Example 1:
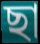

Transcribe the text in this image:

ছা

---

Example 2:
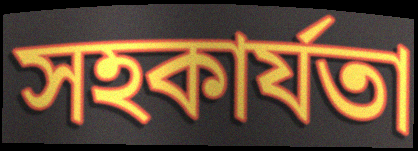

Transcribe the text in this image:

সহকাৰ্যতা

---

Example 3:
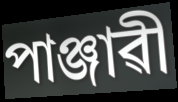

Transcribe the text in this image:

পাঞ্জাৱী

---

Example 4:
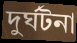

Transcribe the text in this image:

দুৰ্ঘটনা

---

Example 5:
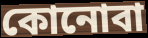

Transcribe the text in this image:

কোনোবা